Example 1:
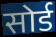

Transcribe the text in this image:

सोर्ड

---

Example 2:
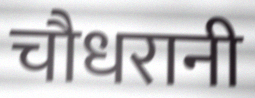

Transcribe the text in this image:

चौधरानी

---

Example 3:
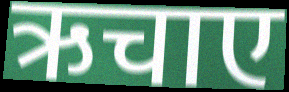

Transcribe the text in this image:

ऋचाए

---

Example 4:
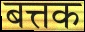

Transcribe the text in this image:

बत्तक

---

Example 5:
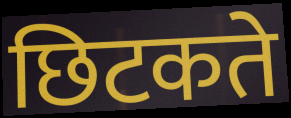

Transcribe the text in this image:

छिटकते